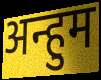
अन्हुम